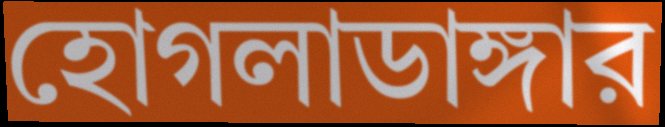
হোগলাডাঙ্গার